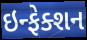
ઇન્ફેક્શન